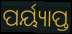
ପର୍ୟ୍ୟାପ୍ତ